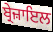
ਬ੍ਰੇਜ਼ਾਇਲ